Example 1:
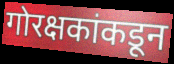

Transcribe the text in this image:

गोरक्षकांकडून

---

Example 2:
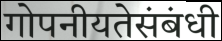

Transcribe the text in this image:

गोपनीयतेसंबंधी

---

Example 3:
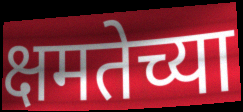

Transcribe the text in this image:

क्षमतेच्या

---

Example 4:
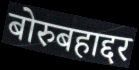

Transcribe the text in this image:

बोरुबहाद्दर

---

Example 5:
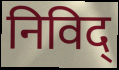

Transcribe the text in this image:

निविद्